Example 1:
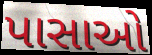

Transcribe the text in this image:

પાસાઓ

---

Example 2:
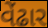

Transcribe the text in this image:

વેંઢાર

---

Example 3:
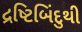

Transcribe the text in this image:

દ્રષ્ટિબિંદુથી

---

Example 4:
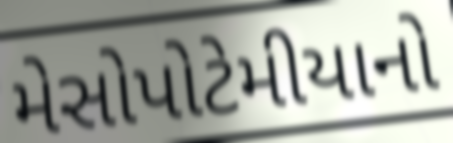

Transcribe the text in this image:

મેસોપોટેમીયાનો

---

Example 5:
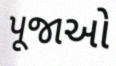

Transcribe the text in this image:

પૂજાઓ